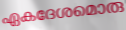
ഏകദേശമൊരു